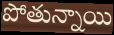
పోతున్నాయి